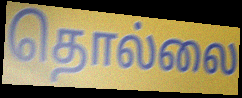
தொல்லை